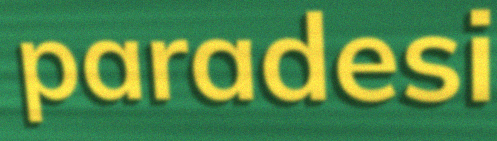
paradesi